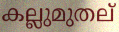
കല്ലുമുതല്